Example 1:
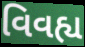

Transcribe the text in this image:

વિવહ્ય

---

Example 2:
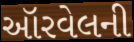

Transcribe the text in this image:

ઑરવેલની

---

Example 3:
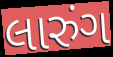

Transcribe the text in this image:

લારુંગ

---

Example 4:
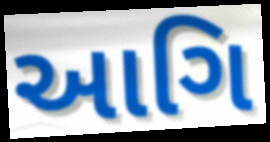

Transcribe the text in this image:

આગિ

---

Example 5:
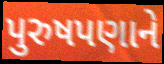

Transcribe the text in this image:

પુરુષપણાને